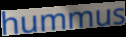
hummus